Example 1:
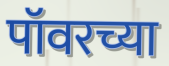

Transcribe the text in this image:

पॉवरच्या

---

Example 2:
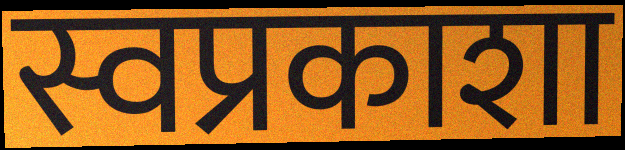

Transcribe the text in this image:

स्वप्रकाशा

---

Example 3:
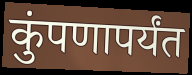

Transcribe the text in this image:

कुंपणापर्यंत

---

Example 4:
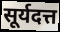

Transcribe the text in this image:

सूर्यदत्त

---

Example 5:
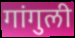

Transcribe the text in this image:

गांगुली